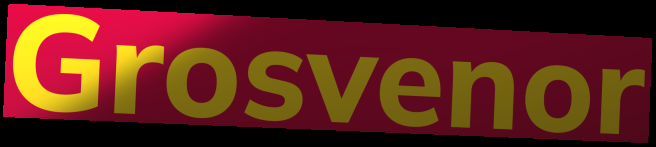
Grosvenor